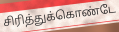
சிரித்துக்கொண்டே